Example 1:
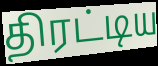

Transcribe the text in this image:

திரட்டிய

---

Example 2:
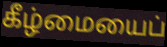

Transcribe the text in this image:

கீழ்மையைப்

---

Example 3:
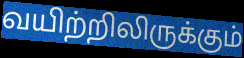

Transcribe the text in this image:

வயிற்றிலிருக்கும்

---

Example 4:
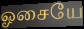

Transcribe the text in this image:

ஓசையே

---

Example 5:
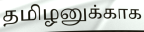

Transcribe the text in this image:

தமிழனுக்காக